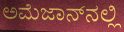
ಅಮೆಜಾನ್‌ನಲ್ಲಿ